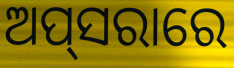
ଅପ୍‌ସରାରେ